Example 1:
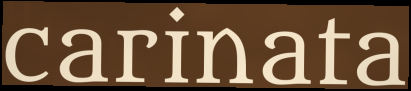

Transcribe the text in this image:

carinata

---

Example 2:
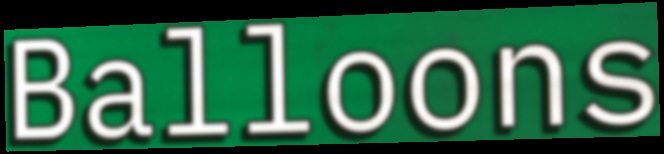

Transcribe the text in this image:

Balloons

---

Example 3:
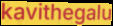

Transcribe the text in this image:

kavithegalu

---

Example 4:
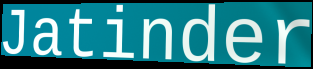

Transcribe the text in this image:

Jatinder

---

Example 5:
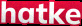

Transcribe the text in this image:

hatke